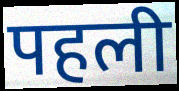
पहली